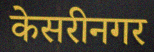
केसरीनगर